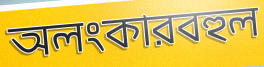
অলংকারবহুল